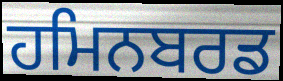
ਹਮਿਨਬਰਡ